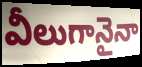
వీలుగానైనా